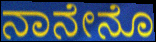
ನಾನೇನೊ